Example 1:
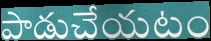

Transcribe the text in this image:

పాడుచేయటం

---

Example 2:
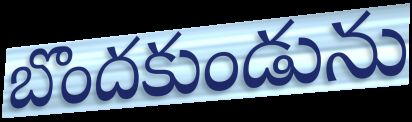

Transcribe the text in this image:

బొందకుండును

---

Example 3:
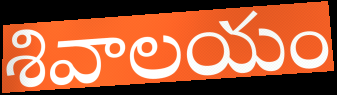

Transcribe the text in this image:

శివాలయం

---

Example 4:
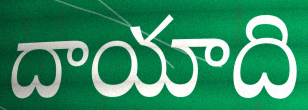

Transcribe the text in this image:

దాయాది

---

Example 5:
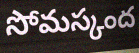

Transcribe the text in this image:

సోమస్కంద